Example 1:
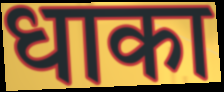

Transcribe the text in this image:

धाका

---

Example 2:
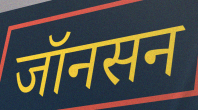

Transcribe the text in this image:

जॉनसन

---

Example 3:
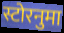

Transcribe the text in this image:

स्टोरनुमा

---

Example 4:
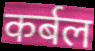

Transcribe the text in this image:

कर्बल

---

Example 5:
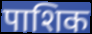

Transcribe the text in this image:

पाशिक